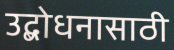
उद्बोधनासाठी